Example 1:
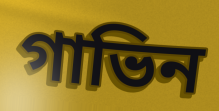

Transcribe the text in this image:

গাভিন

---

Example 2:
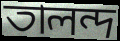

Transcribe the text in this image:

তালন্দ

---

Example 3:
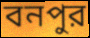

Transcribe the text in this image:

বনপুর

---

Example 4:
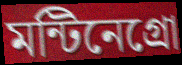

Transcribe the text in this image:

মন্টিনেগ্রো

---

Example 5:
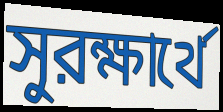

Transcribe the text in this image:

সুরক্ষার্থে